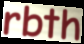
rbth